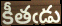
కీతఁడు